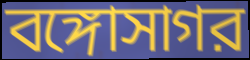
বঙ্গোসাগর